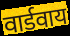
वार्डवाय